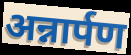
अन्नार्पण